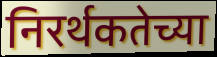
निरर्थकतेच्या